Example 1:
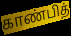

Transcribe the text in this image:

காண்பித்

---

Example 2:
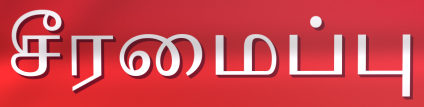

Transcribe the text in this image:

சீரமைப்பு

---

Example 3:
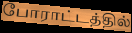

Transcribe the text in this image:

போராட்டத்தில்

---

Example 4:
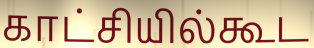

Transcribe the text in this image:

காட்சியில்கூட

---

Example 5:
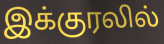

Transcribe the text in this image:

இக்குரலில்